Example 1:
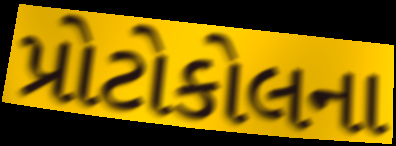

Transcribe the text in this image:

પ્રોટોકોલના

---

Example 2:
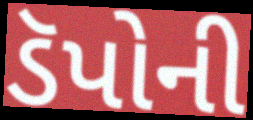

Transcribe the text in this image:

ડૅપોની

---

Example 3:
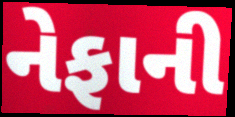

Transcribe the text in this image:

નેફાની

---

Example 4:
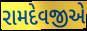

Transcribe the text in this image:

રામદેવજીએ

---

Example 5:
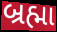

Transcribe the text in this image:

બ્રહ્મા